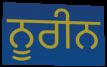
ਨੂਰੀਨ